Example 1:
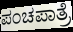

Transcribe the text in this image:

ಪಂಚಪಾತ್ರೆ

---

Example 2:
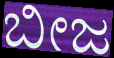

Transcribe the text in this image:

ಬೀಜ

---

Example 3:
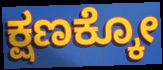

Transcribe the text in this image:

ಕ್ಷಣಕ್ಕೋ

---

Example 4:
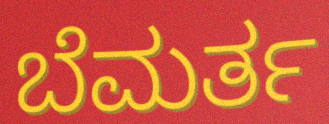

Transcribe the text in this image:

ಬೆಮರ್ತ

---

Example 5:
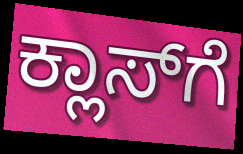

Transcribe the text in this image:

ಕ್ಲಾಸ್‍ಗೆ